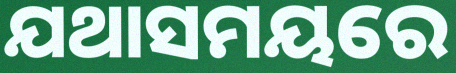
ଯଥାସମୟରେ